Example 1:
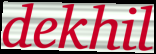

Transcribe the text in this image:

dekhil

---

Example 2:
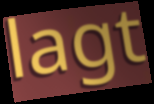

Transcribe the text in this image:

lagt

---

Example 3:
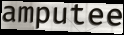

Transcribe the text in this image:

amputee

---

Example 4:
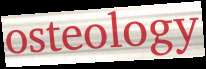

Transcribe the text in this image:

osteology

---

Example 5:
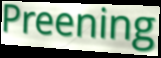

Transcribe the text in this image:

Preening